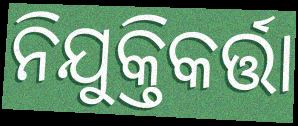
ନିଯୁକ୍ତିକର୍ତ୍ତା